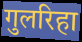
गुलरिहा